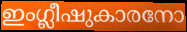
ഇംഗ്ലീഷുകാരനോ